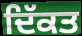
ਦਿੱਕਤ